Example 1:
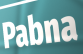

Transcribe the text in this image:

Pabna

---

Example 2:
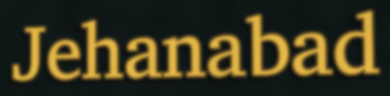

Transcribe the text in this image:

Jehanabad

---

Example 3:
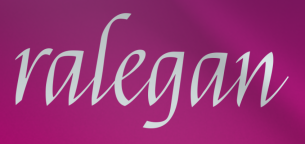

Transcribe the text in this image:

ralegan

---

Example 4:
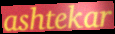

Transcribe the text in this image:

ashtekar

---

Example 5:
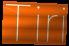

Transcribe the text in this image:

Tiri